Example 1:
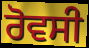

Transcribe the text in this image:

ਰੋਵਸੀ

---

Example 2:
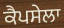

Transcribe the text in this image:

ਕੈਪਸੇਲਾ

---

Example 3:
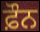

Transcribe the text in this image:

ਫ਼ੌਨ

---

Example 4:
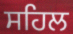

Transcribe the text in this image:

ਸਹਿਲ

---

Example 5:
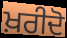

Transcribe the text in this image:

ਖ਼ਰੀਦੋ